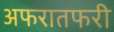
अफरातफरी